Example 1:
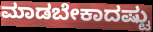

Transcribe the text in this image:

ಮಾಡಬೇಕಾದಷ್ಟು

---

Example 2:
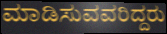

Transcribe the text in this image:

ಮಾಡಿಸುವವರಿದ್ದರು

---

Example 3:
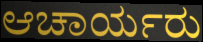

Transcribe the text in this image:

ಆಚಾರ್ಯರು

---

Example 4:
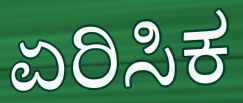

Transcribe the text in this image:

ಏರಿಸಿಕ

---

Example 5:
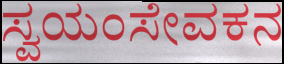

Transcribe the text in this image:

ಸ್ವಯಂಸೇವಕನ